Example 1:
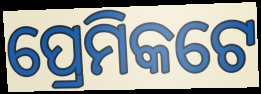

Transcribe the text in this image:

ପ୍ରେମିକଟେ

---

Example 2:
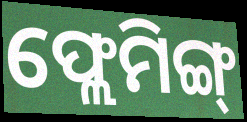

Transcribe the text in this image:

ଫ୍ଲେମିଙ୍ଗ୍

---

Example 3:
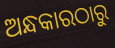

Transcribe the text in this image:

ଅନ୍ଧକାରଠାରୁ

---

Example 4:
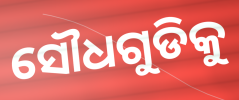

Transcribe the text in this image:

ସୌଧଗୁଡିକୁ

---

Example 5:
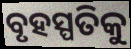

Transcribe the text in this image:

ବୃହସ୍ପତିକୁ